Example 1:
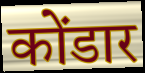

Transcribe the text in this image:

कोंडार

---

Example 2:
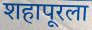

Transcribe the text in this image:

शहापूरला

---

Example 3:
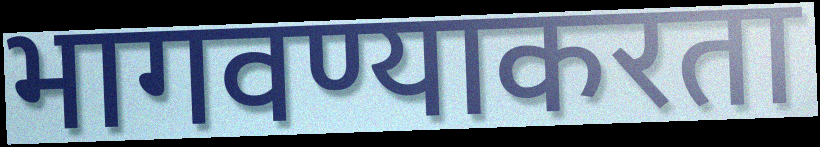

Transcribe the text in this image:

भागवण्याकरता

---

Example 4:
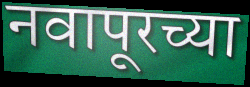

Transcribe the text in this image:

नवापूरच्या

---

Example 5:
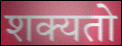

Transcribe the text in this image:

शक्‍यतो